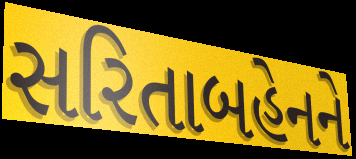
સરિતાબહેનને